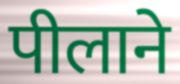
पीलाने